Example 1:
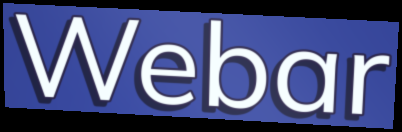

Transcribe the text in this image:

Webar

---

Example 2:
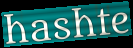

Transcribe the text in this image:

hashte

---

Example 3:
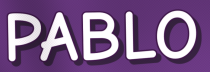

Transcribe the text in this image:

PABLO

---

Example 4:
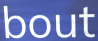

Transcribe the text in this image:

bout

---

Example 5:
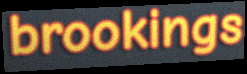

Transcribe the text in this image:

brookings